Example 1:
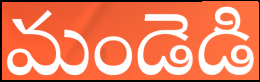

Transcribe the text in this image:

మండెడి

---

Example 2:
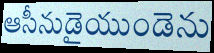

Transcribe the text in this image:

ఆసీనుడైయుండెను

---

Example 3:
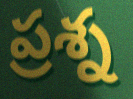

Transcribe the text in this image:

ప్రశ్న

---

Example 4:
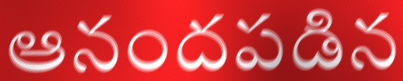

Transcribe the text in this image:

ఆనందపడిన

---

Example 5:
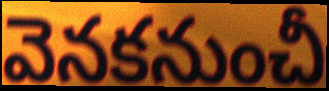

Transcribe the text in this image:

వెనకనుంచీ